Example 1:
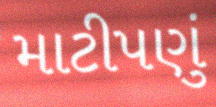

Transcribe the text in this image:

માટીપણું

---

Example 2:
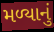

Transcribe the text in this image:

મળ્યાનું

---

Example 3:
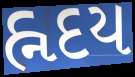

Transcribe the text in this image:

હ્નદય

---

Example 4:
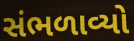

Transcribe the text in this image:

સંભળાવ્યો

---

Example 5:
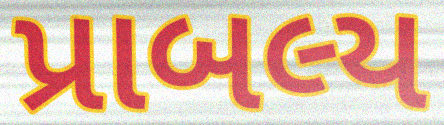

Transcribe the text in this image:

પ્રાબલ્ય